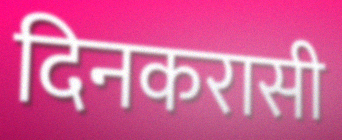
दिनकरासी